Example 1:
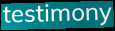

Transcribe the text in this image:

testimony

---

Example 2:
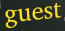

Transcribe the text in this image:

guest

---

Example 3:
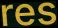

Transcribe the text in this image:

res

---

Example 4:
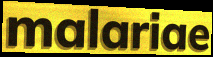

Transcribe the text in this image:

malariae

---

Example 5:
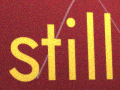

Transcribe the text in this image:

still